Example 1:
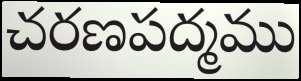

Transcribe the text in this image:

చరణపద్మము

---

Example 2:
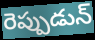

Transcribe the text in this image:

రెప్పుడున్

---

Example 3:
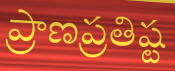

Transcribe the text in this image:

ప్రాణప్రతిష్ట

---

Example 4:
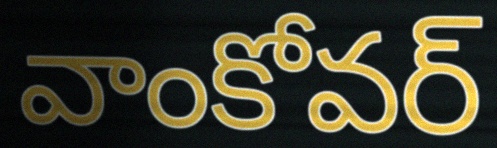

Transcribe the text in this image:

వాంకోవర్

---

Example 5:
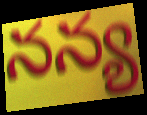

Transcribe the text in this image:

నన్య